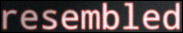
resembled